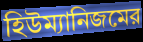
হিউম্যানিজমের